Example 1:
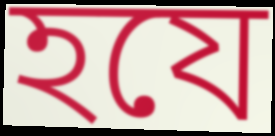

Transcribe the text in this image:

হযে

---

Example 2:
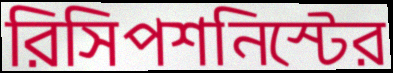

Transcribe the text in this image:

রিসিপশনিস্টের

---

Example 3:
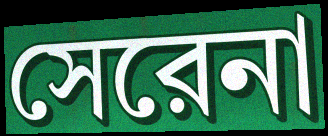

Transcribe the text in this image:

সেরেনা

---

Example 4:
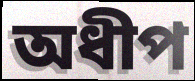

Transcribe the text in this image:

অধীপ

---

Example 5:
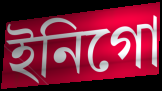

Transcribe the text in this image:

ইনিগো